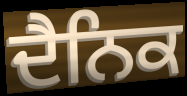
ਦੈਨਿਕ